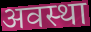
अवस्था